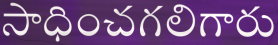
సాధించగలిగారు